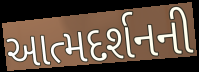
આત્મદર્શનની